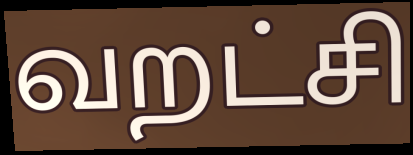
வறட்சி